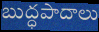
బుద్ధపాదాలు